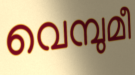
വെമ്പുമീ